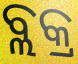
ବ୍ଲକ୍ର